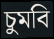
চুমবি